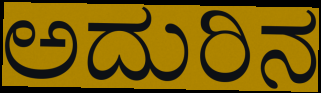
ಅದುರಿನ